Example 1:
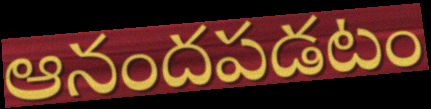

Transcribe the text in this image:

ఆనందపడటం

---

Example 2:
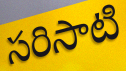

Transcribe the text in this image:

సరిసాటి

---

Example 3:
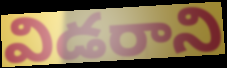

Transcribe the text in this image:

విడరాని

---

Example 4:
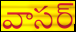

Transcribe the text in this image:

వాసర్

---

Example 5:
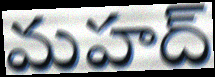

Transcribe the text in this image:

మహద్